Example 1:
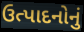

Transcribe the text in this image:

ઉત્પાદનોનું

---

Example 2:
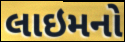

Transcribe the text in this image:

લાઇમનો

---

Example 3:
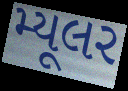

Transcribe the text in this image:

મ્યૂલર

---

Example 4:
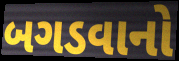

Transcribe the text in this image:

બગડવાનો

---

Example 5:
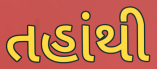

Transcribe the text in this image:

તહાંથી